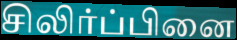
சிலிர்ப்பினை